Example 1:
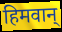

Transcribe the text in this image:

हिमवान्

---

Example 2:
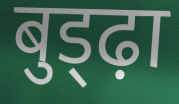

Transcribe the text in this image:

बुड्ढ़ा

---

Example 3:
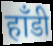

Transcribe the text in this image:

हाँडी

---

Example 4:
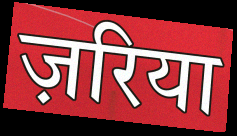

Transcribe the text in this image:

ज़रिया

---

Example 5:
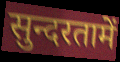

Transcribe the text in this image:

सुन्दरतामें